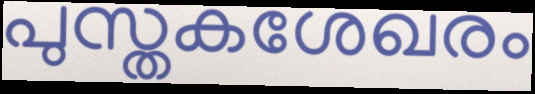
പുസ്തകശേഖരം